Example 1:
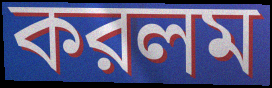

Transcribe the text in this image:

করলম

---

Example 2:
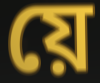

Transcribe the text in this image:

য়ে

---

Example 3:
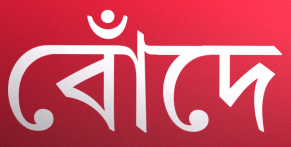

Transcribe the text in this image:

বোঁদে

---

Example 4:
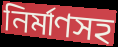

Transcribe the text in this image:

নির্মাণসহ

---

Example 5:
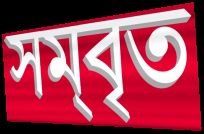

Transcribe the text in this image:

সম্‌বৃত